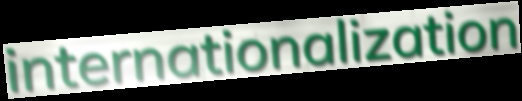
internationalization